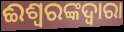
ଈଶ୍ୱରଙ୍କଦ୍ୱାରା